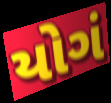
યોગં